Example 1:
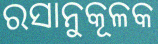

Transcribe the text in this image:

ରସାନୁକୂଳକ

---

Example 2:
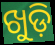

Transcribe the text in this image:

ଖୁଡ଼ି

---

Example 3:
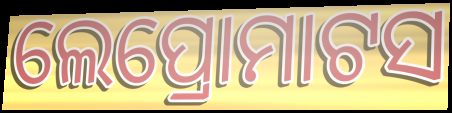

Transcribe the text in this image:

ଲେପ୍ରୋମାଟସ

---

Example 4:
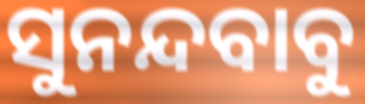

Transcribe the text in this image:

ସୁନନ୍ଦବାବୁ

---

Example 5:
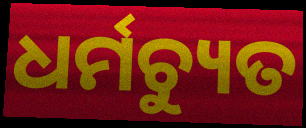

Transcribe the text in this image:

ଧର୍ମଚ୍ୟୁତ